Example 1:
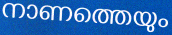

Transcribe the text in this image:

നാണത്തെയും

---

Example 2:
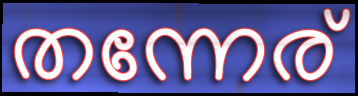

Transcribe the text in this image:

തന്നേര്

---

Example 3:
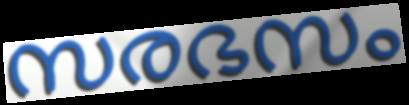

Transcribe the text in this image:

സരഭസം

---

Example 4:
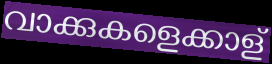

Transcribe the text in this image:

വാക്കുകളെക്കാള്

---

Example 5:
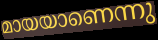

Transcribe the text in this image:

മായയാണെന്നു